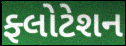
ફ્લોટેશન